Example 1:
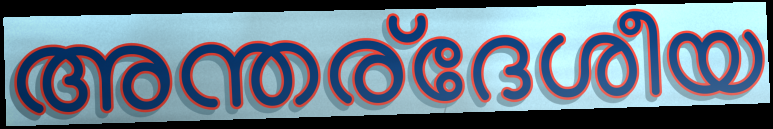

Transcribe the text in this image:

അന്തര്ദേശീയ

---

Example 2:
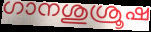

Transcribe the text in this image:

ഗാനശുശ്രൂഷ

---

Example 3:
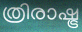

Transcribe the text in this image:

ത്രിരാഷ്ട്ര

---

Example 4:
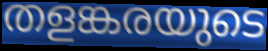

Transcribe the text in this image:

തളങ്കരയുടെ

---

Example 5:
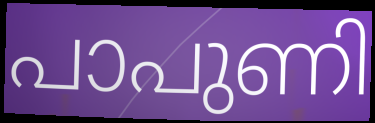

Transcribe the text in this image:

പാപുണി